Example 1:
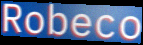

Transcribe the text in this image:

Robeco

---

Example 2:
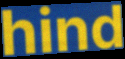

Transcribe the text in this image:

hind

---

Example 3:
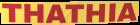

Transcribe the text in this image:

THATHIA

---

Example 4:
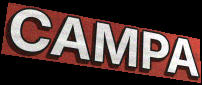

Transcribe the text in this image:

CAMPA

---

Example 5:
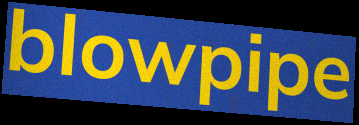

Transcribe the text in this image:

blowpipe